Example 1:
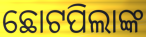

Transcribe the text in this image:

ଛୋଟପିଲାଙ୍କ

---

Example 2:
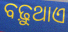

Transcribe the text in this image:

ବଢ଼ୁଥାଏ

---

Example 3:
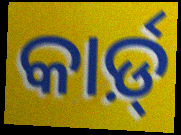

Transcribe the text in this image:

କାର୍ଡ଼୍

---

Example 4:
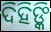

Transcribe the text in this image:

ଦିହିଙ୍କି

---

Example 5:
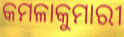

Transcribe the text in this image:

କମଳାକୁମାରୀ